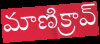
మాణిక్రావ్